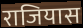
राजियास